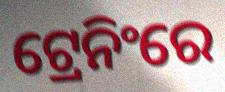
ଟ୍ରେନିଂରେ